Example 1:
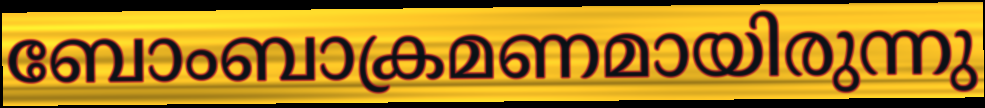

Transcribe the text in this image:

ബോംബാക്രമണമായിരുന്നു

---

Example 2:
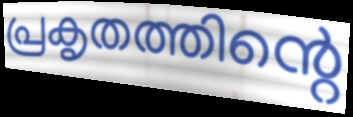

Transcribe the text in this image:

പ്രകൃതത്തിന്റെ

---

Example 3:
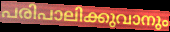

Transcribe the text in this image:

പരിപാലിക്കുവാനും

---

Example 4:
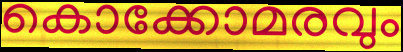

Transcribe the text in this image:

കൊക്കോമരവും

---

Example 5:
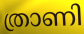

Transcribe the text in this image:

ത്രാണി